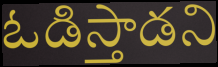
ఓడిస్తాడని